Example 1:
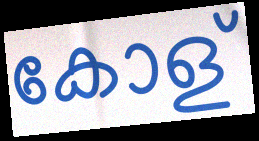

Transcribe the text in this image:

കോള്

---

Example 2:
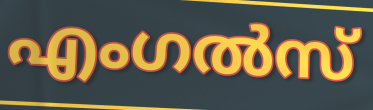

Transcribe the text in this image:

എംഗൽസ്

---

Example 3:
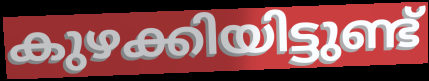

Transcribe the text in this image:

കുഴക്കിയിട്ടുണ്ട്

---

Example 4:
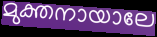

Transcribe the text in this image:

മുക്തനായാലേ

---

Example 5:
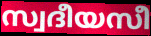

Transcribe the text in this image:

സ്വദീയസീ